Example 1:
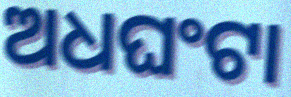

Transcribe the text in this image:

ଅଧଘଂଟା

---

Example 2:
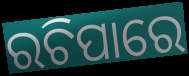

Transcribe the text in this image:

ରଚିପାରେ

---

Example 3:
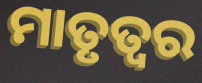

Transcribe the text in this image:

ମାତୃତ୍ୱର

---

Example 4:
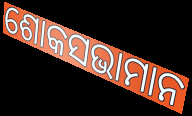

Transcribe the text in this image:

ଶୋକସଭାମାନ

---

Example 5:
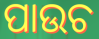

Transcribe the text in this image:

ପାଉଚ